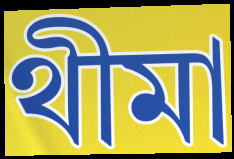
থীমা